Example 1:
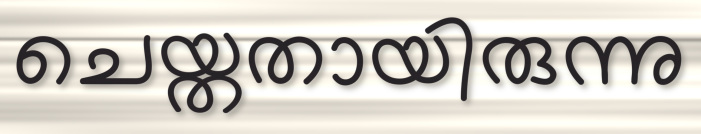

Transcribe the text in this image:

ചെയ്തതായിരുന്നു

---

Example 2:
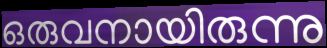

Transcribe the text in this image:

ഒരുവനായിരുന്നു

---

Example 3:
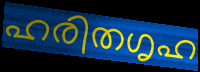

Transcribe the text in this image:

ഹരിതഗൃഹ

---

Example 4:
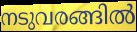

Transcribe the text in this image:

നടുവരങ്ങിൽ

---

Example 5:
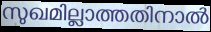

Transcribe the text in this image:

സുഖമില്ലാത്തതിനാൽ